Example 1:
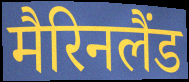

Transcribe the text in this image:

मैरिनलैंड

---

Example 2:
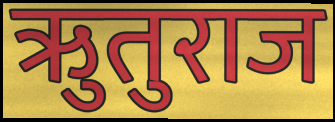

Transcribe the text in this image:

ऋुतुराज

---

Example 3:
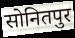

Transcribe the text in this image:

सोनितपुर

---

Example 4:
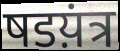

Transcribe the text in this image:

षडय़ंत्र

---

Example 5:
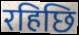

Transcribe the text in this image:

रहिछि